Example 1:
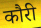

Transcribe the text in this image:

कौरी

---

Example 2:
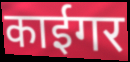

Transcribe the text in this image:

काईगर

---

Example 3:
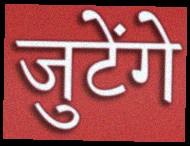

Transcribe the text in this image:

जुटेंगे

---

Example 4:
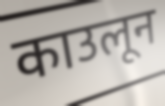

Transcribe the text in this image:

काउलून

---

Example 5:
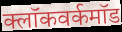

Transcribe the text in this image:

क्लॉकवर्कमॉड